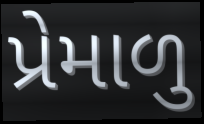
પ્રેમાળુ